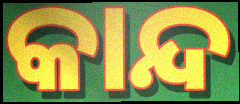
କାନ୍ଦ